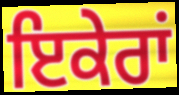
ਇਕੇਰਾਂ